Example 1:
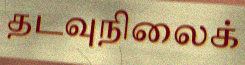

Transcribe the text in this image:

தடவுநிலைக்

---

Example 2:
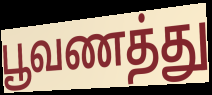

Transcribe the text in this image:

பூவணத்து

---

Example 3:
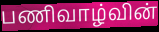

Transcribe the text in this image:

பணிவாழ்வின்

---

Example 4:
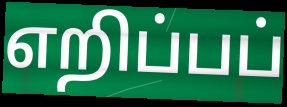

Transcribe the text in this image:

எறிப்பப்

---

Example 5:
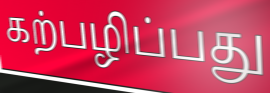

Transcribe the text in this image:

கற்பழிப்பது